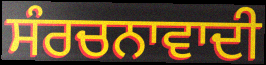
ਸੰਰਚਨਾਵਾਦੀ